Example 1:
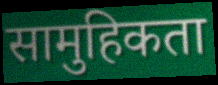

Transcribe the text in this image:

सामुहिकता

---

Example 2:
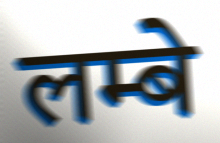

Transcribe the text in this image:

लम्बे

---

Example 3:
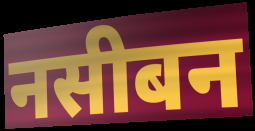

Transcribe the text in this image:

नसीबन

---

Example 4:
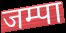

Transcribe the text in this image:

जम्पा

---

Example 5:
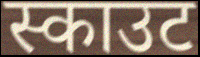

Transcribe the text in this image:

स्काउट